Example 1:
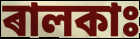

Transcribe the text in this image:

ৰালকাঃ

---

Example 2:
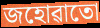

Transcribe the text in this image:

জহোৱাতো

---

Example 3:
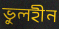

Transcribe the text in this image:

ভুলহীন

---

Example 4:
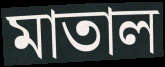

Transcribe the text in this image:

মাতাল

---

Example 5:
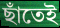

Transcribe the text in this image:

ছাঁতেই